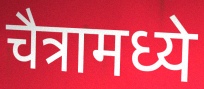
चैत्रामध्ये